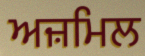
ਅਜ਼ਮਿਲ